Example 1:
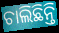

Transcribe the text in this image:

ଚାଲିଛିନ୍ତି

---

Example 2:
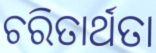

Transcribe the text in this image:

ଚରିତାର୍ଥତା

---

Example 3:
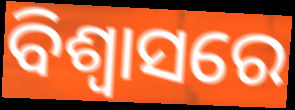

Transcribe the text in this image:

ବିଶ୍ୱାସରେ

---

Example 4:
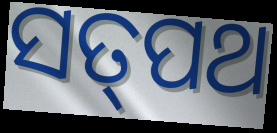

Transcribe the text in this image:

ସତ୍‌ପଥ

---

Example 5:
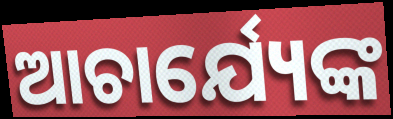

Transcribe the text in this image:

ଆଚାର୍ଯ୍ୟେଙ୍କ